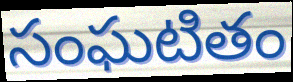
సంఘటితం